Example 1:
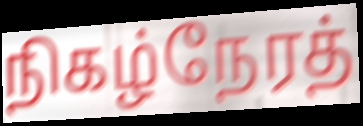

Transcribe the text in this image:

நிகழ்நேரத்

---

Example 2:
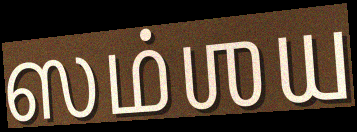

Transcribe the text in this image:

ஸம்ஶய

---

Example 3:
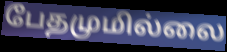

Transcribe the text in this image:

பேதமுமில்லை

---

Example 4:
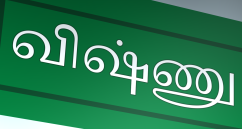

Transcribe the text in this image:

விஷ்ணு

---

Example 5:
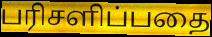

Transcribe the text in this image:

பரிசளிப்பதை